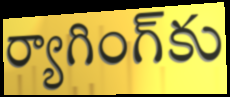
ర్యాగింగ్‌కు